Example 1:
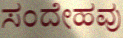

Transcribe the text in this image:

ಸಂದೇಹವು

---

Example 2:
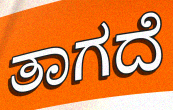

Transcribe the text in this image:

ತಾಗದೆ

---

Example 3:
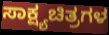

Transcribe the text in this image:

ಸಾಕ್ಷ್ಯಚಿತ್ರಗಳ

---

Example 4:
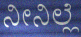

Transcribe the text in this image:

ನೀನಿಲ್ಲೆ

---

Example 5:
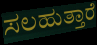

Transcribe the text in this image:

ಸಲಹುತ್ತಾರೆ